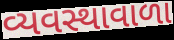
વ્યવસ્થાવાળા